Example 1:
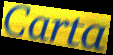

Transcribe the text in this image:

Carta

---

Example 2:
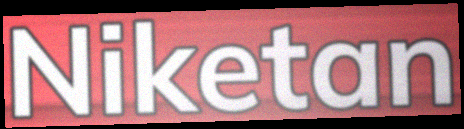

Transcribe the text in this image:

Niketan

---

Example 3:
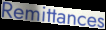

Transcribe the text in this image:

Remittances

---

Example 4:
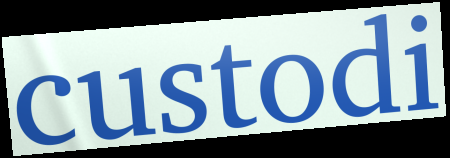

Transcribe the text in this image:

custodi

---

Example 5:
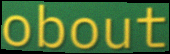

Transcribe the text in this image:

obout